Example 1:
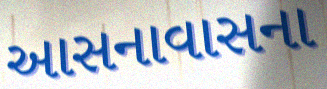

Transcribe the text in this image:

આસનાવાસના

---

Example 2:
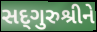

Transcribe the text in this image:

સદ્‌ગુરુશ્રીને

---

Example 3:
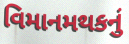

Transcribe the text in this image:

વિમાનમથકનું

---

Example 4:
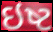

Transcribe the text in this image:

ઇષ્ટ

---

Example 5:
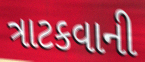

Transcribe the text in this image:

ત્રાટકવાની